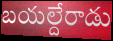
బయల్దేరాడు